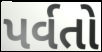
પર્વતો